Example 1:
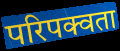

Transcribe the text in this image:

परिपक्‍वता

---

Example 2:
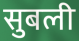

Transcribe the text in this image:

सुबली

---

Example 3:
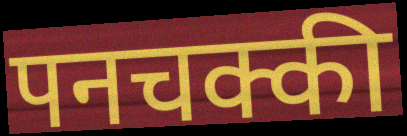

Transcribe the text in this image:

पनचक्की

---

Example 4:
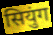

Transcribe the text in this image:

सियुंग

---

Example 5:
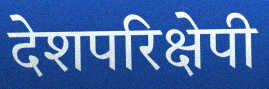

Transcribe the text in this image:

देशपरिक्षेपी